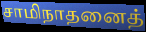
சாமிநாதனைத்